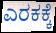
ಎರಕಕ್ಕೆ